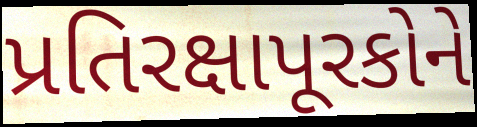
પ્રતિરક્ષાપૂરકોને